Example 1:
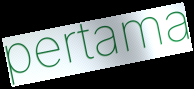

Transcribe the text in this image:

pertama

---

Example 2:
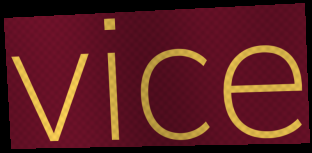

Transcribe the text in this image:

vice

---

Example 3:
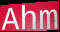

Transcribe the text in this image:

Ahm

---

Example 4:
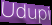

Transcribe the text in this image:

Udupi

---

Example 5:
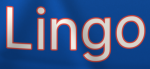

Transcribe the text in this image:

Lingo